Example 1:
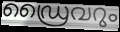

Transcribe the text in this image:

ഡ്രൈവറും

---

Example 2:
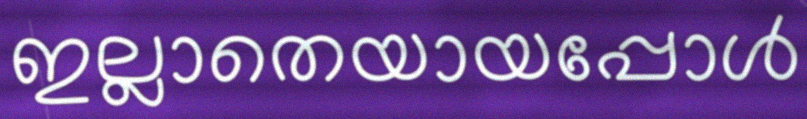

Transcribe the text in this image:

ഇല്ലാതെയായപ്പോൾ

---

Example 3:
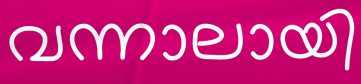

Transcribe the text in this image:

വന്നാലായി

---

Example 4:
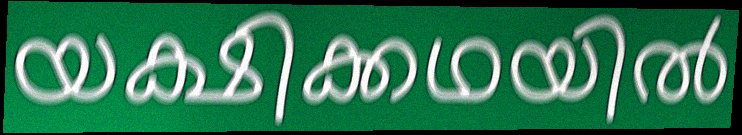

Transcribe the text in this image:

യക്ഷിക്കഥയിൽ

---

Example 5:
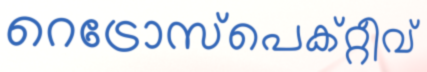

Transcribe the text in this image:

റെട്രോസ്പെക്റ്റീവ്